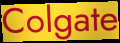
Colgate